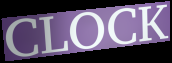
CLOCK